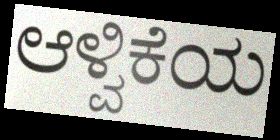
ಆಳ್ವಿಕೆಯ